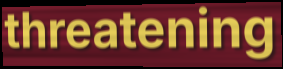
threatening